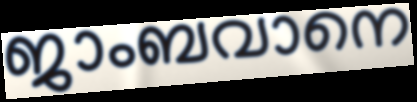
ജാംബവാനെ